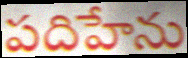
పదిహేను